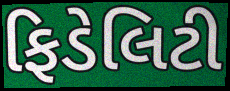
ફિડેલિટી